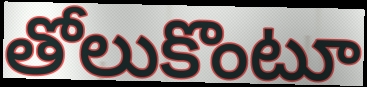
తోలుకొంటూ